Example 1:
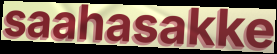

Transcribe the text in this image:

saahasakke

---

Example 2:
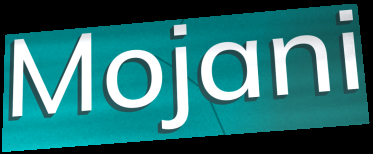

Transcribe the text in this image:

Mojani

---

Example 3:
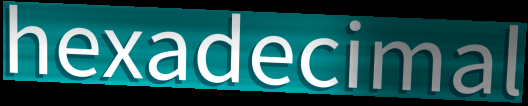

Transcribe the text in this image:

hexadecimal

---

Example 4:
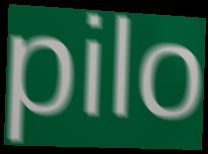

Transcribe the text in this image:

pilo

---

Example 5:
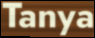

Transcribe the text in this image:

Tanya